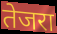
तेजरा